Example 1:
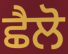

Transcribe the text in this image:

ਛੈਲੋ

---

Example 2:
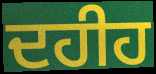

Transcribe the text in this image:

ਦਹੀਹ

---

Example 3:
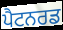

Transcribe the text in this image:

ਪੈਟਨਰਡ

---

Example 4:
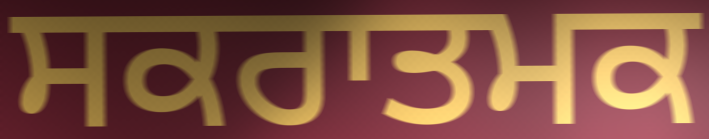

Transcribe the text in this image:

ਸਕਰਾਤਮਕ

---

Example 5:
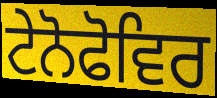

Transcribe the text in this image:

ਟੇਨੋਫੋਵਿਰ